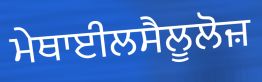
ਮੇਥਾਈਲਸੈਲੂਲੋਜ਼